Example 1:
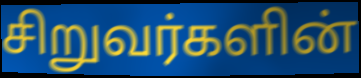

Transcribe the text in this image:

சிறுவர்களின்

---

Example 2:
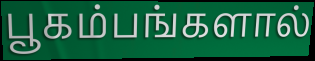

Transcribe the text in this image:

பூகம்பங்களால்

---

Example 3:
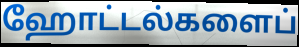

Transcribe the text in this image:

ஹோட்டல்களைப்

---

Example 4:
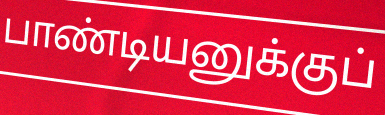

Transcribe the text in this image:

பாண்டியனுக்குப்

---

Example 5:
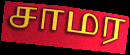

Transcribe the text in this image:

சாமர